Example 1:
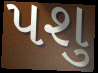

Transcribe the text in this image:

પશુ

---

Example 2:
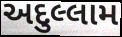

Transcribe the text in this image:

અદુલ્લામ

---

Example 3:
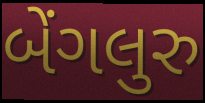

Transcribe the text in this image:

બેંગલુરુ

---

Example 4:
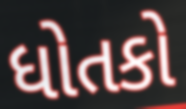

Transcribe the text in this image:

ધોતકો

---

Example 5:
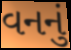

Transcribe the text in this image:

વનનું